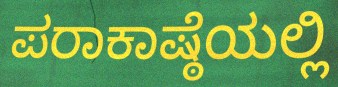
ಪರಾಕಾಷ್ಠೆಯಲ್ಲಿ